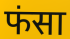
फंसा